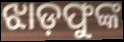
ଝାଡ଼ଫୁଙ୍କ